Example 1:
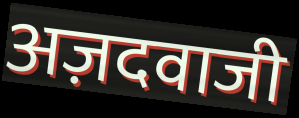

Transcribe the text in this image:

अज़दवाजी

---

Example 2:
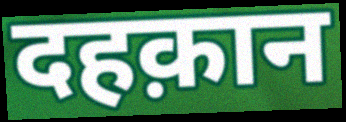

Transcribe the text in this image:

दहक़ान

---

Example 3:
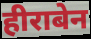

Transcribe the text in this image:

हीराबेन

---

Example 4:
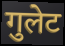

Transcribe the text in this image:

गुलेट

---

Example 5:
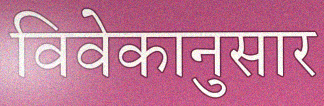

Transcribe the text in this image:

विवेकानुसार